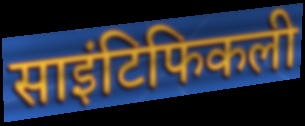
साइंटिफिकली